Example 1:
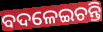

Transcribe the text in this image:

ବଦଳେଇଚନ୍ତି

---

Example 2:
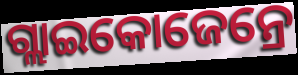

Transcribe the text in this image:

ଗ୍ଲାଇକୋଜେନ୍ରେ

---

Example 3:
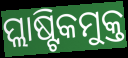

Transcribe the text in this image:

ପ୍ଲାଷ୍ଟିକମୁକ୍ତ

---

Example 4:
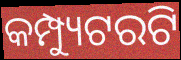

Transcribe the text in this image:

କମ୍ପ୍ୟୁଟରଟି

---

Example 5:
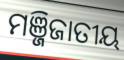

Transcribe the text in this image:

ମଞ୍ଜିଜାତୀୟ